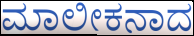
ಮಾಲೀಕನಾದ